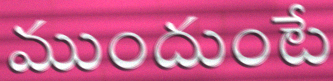
ముందుంటే